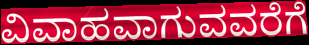
ವಿವಾಹವಾಗುವವರೆಗೆ